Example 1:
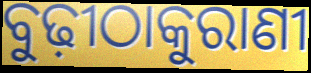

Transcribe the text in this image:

ବୁଢ଼ୀଠାକୁରାଣୀ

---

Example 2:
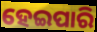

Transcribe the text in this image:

ହେଇପାରି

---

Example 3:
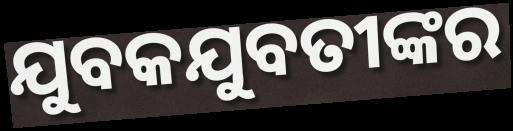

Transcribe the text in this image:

ଯୁବକଯୁବତୀଙ୍କର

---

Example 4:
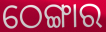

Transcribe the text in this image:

ଠେଙ୍ଗାର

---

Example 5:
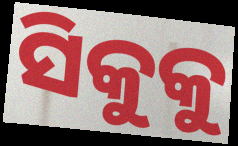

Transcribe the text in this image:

ସିକୁକୁ